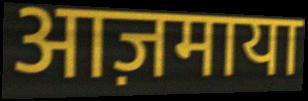
आज़माया